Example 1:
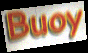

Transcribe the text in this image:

Buoy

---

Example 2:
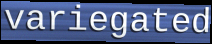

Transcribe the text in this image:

variegated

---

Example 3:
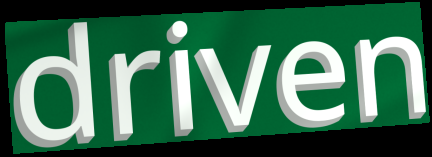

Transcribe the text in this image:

driven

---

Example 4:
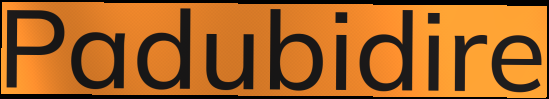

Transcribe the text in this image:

Padubidire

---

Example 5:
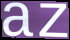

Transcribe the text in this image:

az